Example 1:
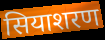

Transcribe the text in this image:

सियाशरण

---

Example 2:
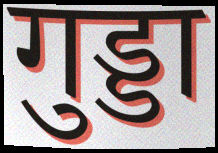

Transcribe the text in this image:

गुड्डा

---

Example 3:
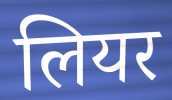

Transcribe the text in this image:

लियर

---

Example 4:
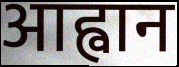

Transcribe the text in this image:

आह्वान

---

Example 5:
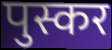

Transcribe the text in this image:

पुस्कर